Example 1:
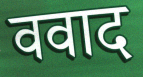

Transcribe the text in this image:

ववाद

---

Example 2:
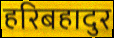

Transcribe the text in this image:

हरिबहादुर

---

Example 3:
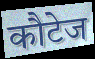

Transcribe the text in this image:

कौटेज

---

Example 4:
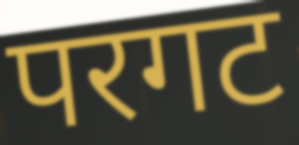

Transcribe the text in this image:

परगट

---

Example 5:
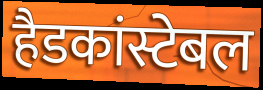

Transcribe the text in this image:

हैडकांस्टेबल